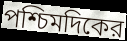
পশ্চিমদিকের